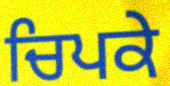
ਚਿਪਕੇ